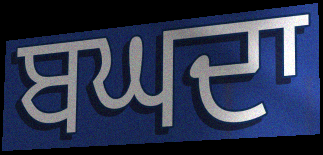
ਬਘਦਾ